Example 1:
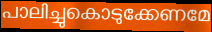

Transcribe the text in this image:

പാലിച്ചുകൊടുക്കേണമേ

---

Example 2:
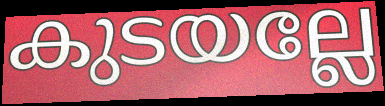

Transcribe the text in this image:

കുടയല്ലേ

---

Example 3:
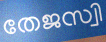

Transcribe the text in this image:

തേജസ്വി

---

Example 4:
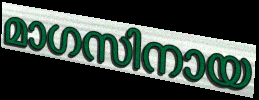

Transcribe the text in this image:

മാഗസിനായ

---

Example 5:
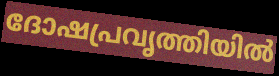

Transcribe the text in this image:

ദോഷപ്രവൃത്തിയിൽ